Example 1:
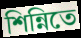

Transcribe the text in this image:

শিন্নিতে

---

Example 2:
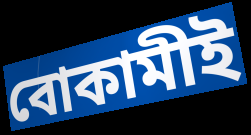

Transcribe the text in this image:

বোকামীই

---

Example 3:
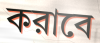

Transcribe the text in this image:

করাবে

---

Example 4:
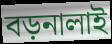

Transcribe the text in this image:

বড়নালাই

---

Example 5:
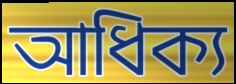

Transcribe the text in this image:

আধিক্য